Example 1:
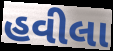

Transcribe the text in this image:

હવીલા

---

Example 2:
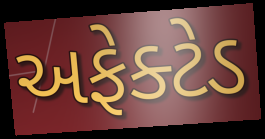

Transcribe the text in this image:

અફેક્ટેડ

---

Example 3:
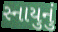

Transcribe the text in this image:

સ્નાયુનું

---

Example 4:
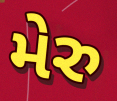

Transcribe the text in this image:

મેરુ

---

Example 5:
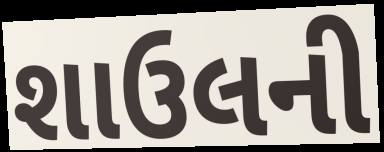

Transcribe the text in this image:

શાઉલની